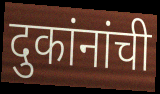
दुकांनांची